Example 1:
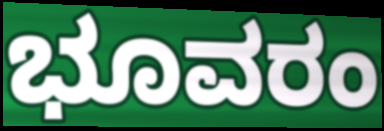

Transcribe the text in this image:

ಭೂವರಂ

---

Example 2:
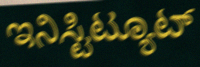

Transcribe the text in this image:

ಇನಿಸ್ಟಿಟ್ಯೂಟ್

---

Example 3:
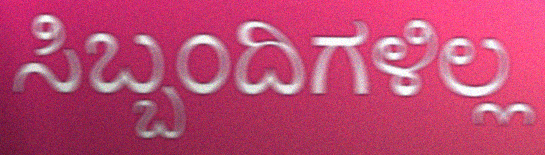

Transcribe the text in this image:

ಸಿಬ್ಬಂದಿಗಳಿಲ್ಲ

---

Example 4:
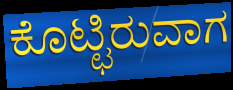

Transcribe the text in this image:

ಕೊಟ್ಟಿರುವಾಗ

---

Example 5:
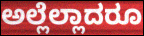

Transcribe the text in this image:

ಅಲ್ಲೆಲ್ಲಾದರೂ